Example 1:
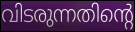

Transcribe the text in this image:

വിടരുന്നതിന്റെ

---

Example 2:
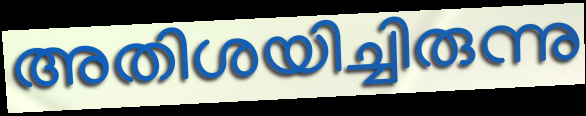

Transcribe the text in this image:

അതിശയിച്ചിരുന്നു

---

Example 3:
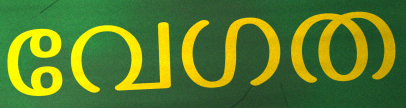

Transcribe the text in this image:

വേഗത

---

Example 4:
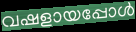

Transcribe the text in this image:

വഷളായപ്പോൾ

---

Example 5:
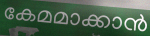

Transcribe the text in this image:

കേമമാക്കാൻ